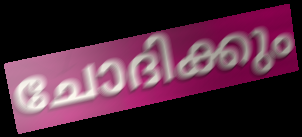
ചോദിക്കും